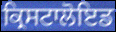
ਕ੍ਰਿਸਟਾਲੋਇਡ